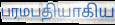
பரமபதியாகிய